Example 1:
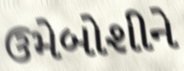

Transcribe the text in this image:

ઉમેબોશીને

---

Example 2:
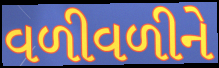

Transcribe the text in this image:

વળીવળીને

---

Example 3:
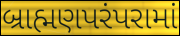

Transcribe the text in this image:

બ્રાહ્મણપરંપરામાં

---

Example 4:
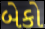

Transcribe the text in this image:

બેકો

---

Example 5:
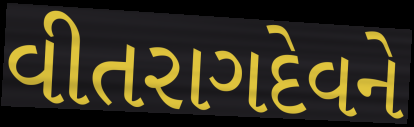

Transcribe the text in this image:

વીતરાગદેવને